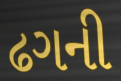
ઢગની